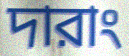
দারাং